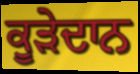
ਕੂੜੇਦਾਨ